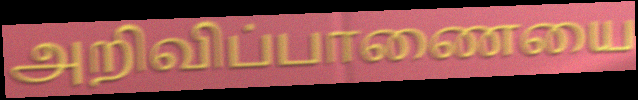
அறிவிப்பாணையை